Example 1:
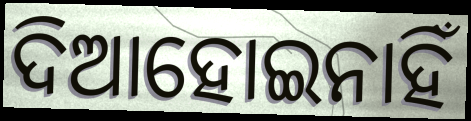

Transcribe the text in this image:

ଦିଆହୋଇନାହିଁ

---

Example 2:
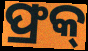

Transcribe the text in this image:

ଫ୍ରକ୍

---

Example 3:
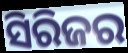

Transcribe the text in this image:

ସିରିଜର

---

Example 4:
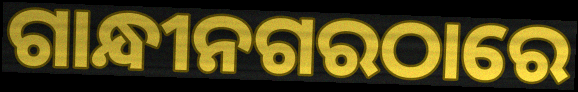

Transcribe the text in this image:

ଗାନ୍ଧୀନଗରଠାରେ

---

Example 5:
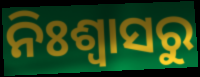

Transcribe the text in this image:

ନିଃଶ୍ଵାସରୁ